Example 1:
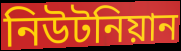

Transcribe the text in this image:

নিউটনিয়ান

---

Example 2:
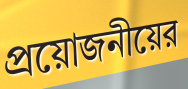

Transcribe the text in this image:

প্রয়োজনীয়ের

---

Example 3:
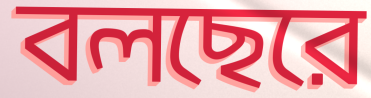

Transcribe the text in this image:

বলছেরে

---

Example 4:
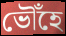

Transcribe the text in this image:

ভৌঁহে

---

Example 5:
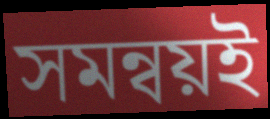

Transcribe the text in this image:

সমন্বয়ই